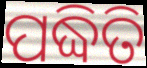
ପଦ୍ଧିତି